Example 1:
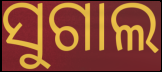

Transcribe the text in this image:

ସୁଗାଲ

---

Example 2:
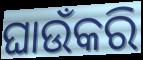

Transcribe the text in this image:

ଘାଉଁକରି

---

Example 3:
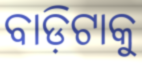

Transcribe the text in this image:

ବାଡ଼ିଟାକୁ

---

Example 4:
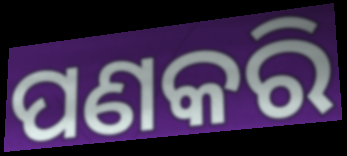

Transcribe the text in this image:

ପଣକରି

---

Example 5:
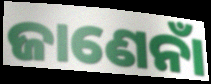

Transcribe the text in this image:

ଜାଣେନାଁ